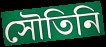
সৌতিনি